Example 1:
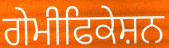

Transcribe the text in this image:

ਗੇਮੀਫਿਕੇਸ਼ਨ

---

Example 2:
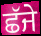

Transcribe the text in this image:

ਛੱਜੇ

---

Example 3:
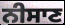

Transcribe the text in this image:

ਨੀਸਾਣ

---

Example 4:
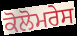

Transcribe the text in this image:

ਕੋਲੋਮਰੇਸ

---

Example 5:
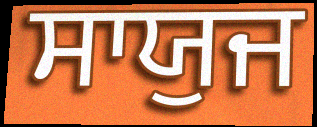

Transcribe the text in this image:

ਸਾਯੁਜ